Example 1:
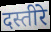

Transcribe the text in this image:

दस्तीरे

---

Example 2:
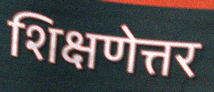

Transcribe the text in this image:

शिक्षणेत्तर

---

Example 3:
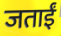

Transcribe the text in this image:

जताईं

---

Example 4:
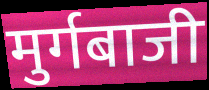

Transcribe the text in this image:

मुर्गबाजी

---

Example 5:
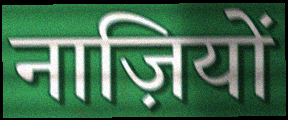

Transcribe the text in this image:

नाज़ियों